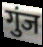
गुंज